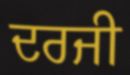
ਦਰਜੀ